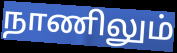
நாணிலும்